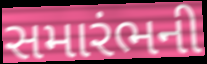
સમારંભની